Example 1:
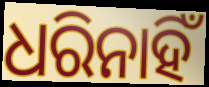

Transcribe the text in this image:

ଧରିନାହିଁ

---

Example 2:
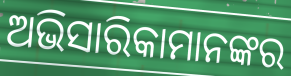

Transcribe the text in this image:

ଅଭିସାରିକାମାନଙ୍କର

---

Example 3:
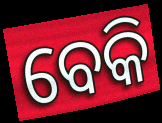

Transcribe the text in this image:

ବେକି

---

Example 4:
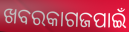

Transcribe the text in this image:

ଖବରକାଗଜପାଇଁ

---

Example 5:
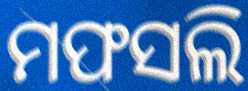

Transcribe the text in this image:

ମଫସଲି